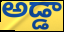
అడ్డా